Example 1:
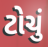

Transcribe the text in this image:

ટોચું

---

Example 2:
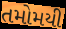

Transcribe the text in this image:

તમોમયી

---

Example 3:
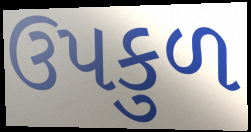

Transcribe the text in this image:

ઉપકુળ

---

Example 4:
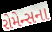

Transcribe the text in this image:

રોમેન્સના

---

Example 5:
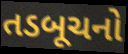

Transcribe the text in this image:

તડબૂચનો